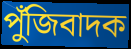
পুঁজিবাদক